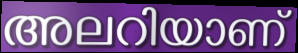
അലറിയാണ്